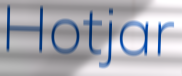
Hotjar